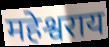
महेश्वराय